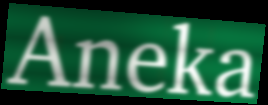
Aneka